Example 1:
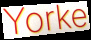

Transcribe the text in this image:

Yorke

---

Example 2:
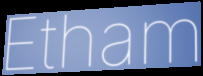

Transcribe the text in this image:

Etham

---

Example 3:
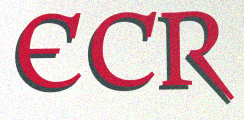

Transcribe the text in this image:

ECR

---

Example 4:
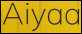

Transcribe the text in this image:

Aiyaa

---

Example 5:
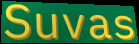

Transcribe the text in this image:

Suvas